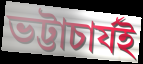
ভট্টাচাৰ্যই